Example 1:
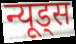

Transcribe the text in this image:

न्यूड्स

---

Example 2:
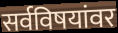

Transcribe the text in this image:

सर्वविषयांवर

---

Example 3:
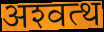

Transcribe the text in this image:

अश्वत्थ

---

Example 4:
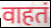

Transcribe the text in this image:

वाहतं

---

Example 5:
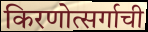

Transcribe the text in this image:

किरणोत्सर्गाची